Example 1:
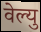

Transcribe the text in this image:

वेल्यु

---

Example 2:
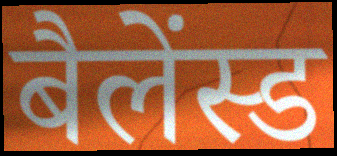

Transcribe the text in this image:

बैलेंस्ड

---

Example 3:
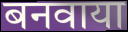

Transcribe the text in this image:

बनवाया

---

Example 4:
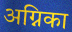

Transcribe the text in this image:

अग्निका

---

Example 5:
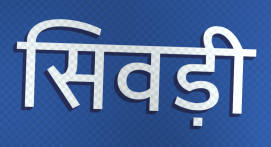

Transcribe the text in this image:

सिवड़ी